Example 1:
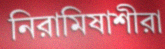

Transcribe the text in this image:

নিরামিষাশীরা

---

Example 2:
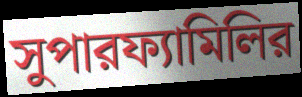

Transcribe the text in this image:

সুপারফ্যামিলির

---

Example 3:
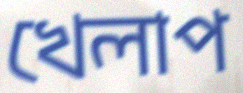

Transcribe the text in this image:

খেলাপ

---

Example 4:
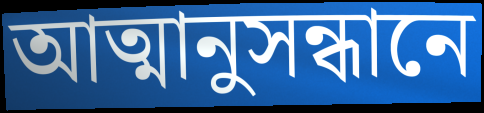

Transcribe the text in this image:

আত্মানুসন্ধানে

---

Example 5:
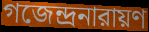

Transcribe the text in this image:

গজেন্দ্রনারায়ণ